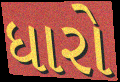
ધારો